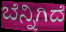
ಬೆನ್ನಿಗಿದೆ